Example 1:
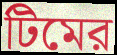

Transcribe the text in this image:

টিমের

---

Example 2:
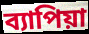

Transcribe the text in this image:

ব্যাপিয়া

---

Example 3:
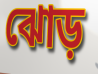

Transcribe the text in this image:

ঝোড়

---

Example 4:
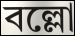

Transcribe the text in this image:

বল্লো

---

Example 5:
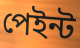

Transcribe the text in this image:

পেইন্ট